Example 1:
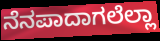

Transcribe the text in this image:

ನೆನಪಾದಾಗಲೆಲ್ಲಾ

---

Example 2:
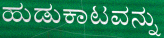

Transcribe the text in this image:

ಹುಡುಕಾಟವನ್ನು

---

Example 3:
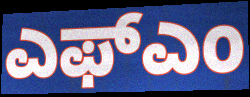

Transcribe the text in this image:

ಎಫ್ಎಂ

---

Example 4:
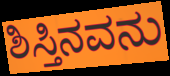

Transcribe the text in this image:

ಶಿಸ್ತಿನವನು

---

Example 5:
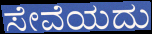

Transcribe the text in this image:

ಸೇವೆಯದು